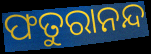
ଫତୁରାନନ୍ଦ